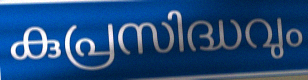
കുപ്രസിദ്ധവും